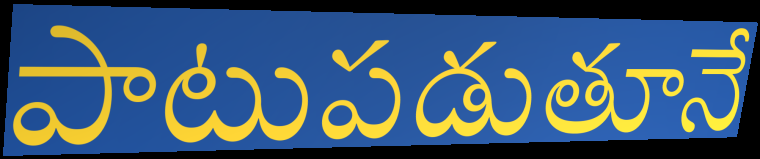
పాటుపడుతూనే